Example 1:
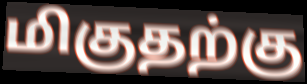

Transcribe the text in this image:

மிகுதற்கு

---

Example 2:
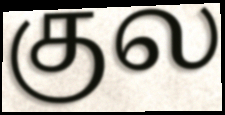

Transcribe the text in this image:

குல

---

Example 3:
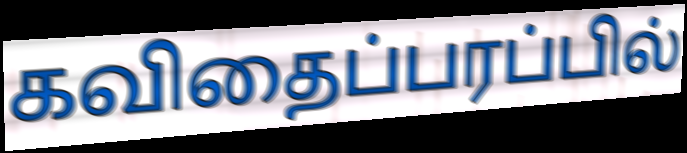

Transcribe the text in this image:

கவிதைப்பரப்பில்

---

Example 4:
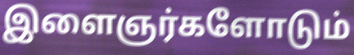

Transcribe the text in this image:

இளைஞர்களோடும்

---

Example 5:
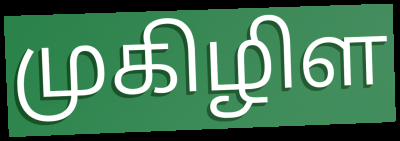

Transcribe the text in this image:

முகிழிள